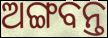
ଅଙ୍ଗବନ୍ତ